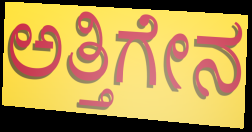
ಅತ್ತಿಗೇನ